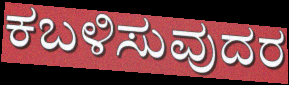
ಕಬಳಿಸುವುದರ